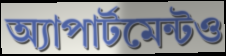
অ্যাপার্টমেন্টও